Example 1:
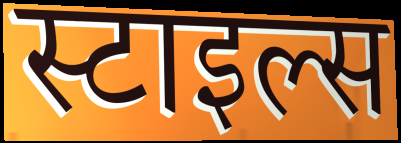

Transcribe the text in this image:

स्टाइल्स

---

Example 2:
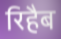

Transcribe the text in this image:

रिहैब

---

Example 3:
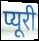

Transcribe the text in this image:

प्यूरी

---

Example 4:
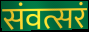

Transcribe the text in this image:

संवत्सरं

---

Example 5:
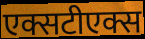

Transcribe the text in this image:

एक्सटीएक्स